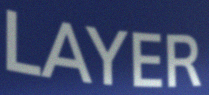
LAYER